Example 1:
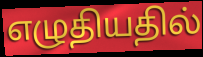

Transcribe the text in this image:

எழுதியதில்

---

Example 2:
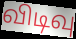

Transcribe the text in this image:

விடிவு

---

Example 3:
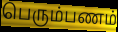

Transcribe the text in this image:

பெரும்பணம்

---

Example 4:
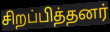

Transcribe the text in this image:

சிறப்பித்தனர்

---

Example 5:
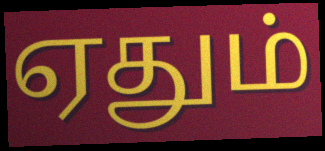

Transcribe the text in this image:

ஏதும்